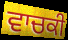
ਵਾਚਕੀ